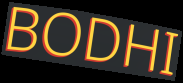
BODHI